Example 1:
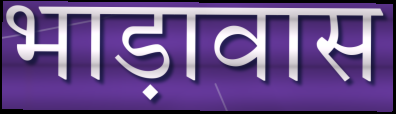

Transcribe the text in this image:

भाड़ावास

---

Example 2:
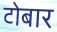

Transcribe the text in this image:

टोबार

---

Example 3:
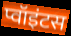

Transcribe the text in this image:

प्वॉइंटस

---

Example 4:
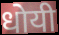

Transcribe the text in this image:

धोयी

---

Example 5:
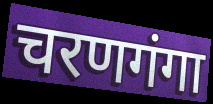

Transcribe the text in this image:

चरणगंगा